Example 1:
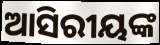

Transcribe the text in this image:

ଆସିରୀୟଙ୍କ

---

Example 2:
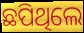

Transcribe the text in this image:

ଛପିଥିଲେ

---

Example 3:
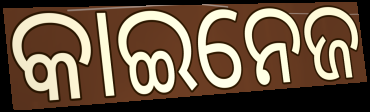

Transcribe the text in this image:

କାଇନେଜ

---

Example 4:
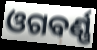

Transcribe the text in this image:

ଓଗବର୍ଣ୍ଣ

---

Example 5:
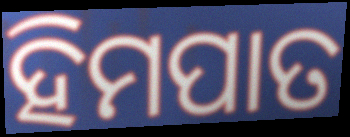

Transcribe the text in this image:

ହିମପାତ